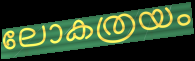
ലോകത്രയം